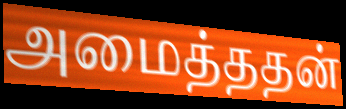
அமைத்ததன்